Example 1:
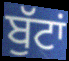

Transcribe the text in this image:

ਬੁੱਟਾਂ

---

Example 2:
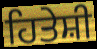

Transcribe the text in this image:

ਹਿਤੇਸ਼ੀ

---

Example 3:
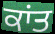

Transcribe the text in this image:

ਕਾਂਤ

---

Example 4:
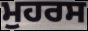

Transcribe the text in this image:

ਮੁਹਰਸ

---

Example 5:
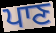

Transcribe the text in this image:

ਪਾਣ